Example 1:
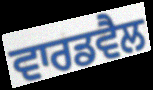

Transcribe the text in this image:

ਵਾਰਡਵੈਲ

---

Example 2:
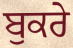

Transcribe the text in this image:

ਬੁਕਰੇ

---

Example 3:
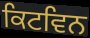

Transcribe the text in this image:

ਕਿਟਵਿਨ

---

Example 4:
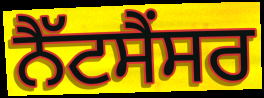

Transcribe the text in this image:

ਨੈੱਟਸੈਂਸਰ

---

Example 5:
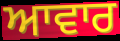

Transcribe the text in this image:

ਆਵਾਰ